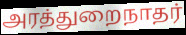
அரத்துறைநாதர்